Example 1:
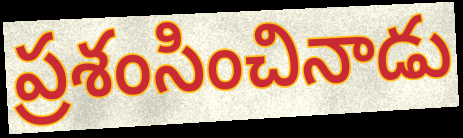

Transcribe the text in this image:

ప్రశంసించినాడు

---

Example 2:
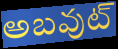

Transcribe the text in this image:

అబవుట్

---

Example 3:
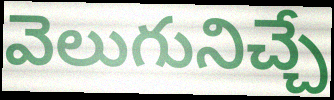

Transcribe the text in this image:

వెలుగునిచ్చే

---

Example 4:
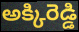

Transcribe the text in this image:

అక్కిరెడ్డి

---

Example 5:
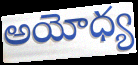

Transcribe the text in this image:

అయోధ్య